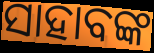
ସାହାବଙ୍କ